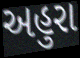
અહુરા